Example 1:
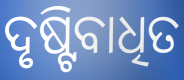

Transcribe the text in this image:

ଦୃଷ୍ଟିବାଧିତ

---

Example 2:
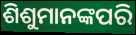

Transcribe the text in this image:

ଶିଶୁମାନଙ୍କପରି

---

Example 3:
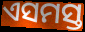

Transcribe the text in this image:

ଏସମସ୍ତ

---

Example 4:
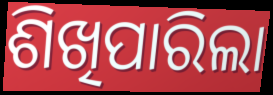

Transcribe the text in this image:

ଶିଖିପାରିଲା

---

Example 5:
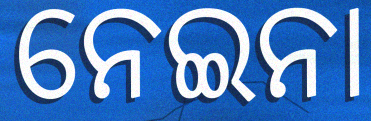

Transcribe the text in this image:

ନେଇନା